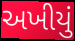
અખીયું